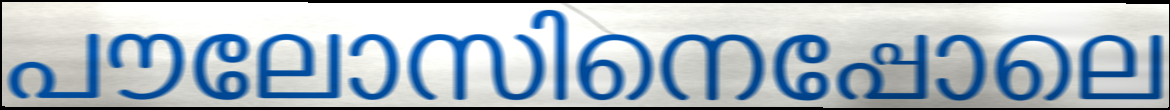
പൗലോസിനെപ്പോലെ